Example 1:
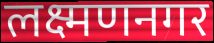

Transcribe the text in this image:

लक्ष्मणनगर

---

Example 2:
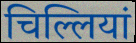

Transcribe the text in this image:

चिल्लियां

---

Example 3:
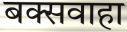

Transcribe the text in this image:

बक्सवाहा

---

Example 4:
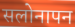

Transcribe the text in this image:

सलोनापन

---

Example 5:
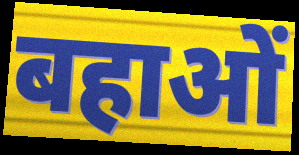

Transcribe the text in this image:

बहाओं